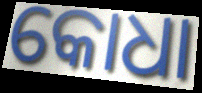
କୋଧା